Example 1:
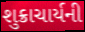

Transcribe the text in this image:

શુક્રાચાર્યની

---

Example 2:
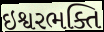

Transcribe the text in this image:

ઇશ્વરભક્તિ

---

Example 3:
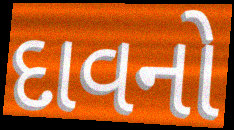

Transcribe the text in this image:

દાવનો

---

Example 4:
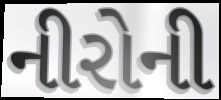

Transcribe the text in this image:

નીરોની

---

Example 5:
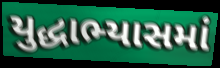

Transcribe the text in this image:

યુદ્ધાભ્યાસમાં